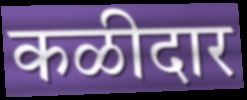
कळीदार